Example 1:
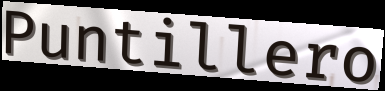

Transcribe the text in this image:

Puntillero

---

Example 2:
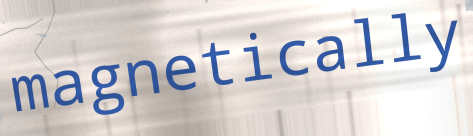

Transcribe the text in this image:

magnetically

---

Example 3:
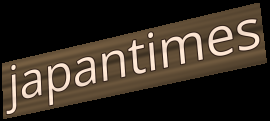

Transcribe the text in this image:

japantimes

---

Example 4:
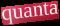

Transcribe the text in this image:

quanta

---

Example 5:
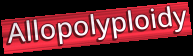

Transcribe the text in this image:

Allopolyploidy